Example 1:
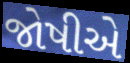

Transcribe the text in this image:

જોષીએ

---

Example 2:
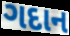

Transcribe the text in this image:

ગદાન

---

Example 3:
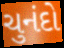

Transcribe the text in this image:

ચુનંદો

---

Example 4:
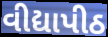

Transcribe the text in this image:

વીદ્યાપીઠ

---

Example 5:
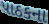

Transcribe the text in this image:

પાઠકના